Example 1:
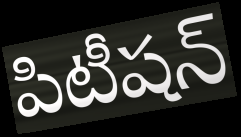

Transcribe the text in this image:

పిటీషన్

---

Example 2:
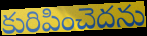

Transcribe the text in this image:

కురిపించెదను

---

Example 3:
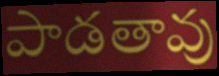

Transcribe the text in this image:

పాడతావు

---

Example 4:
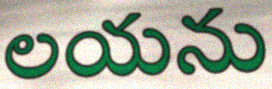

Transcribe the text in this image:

లయను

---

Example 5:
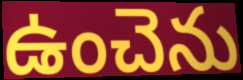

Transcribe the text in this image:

ఉంచెను